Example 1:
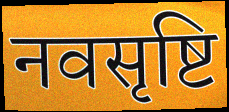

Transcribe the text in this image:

नवसृष्टि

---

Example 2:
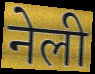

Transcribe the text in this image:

नेली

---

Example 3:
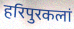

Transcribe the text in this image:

हरिपुरकलां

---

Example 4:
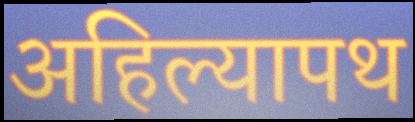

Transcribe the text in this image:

अहिल्यापथ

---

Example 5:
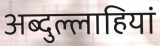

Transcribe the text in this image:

अब्दुल्लाहियां